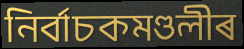
নিৰ্বাচকমণ্ডলীৰ